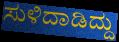
ಸುಳಿದಾಡಿದ್ದು